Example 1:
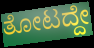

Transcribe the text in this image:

ತೋಟದ್ದೇ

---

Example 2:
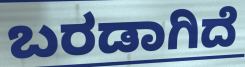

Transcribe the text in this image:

ಬರಡಾಗಿದೆ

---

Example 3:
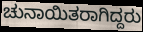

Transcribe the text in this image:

ಚುನಾಯಿತರಾಗಿದ್ದರು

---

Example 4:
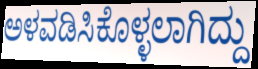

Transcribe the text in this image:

ಅಳವಡಿಸಿಕೊಳ್ಳಲಾಗಿದ್ದು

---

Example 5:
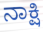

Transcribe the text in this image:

ನಾಕ್ಷಿ